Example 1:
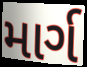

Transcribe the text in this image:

માર્ગ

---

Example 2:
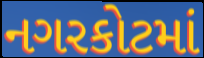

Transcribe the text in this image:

નગરકોટમાં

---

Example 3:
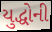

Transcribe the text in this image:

યુદ્ધોની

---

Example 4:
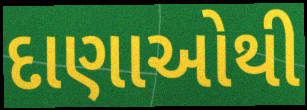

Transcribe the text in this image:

દાણાઓથી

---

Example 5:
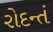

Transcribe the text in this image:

રોદન્તં